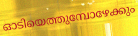
ഓടിയെത്തുമ്പോഴേക്കും